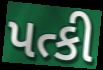
પત્કી